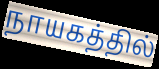
நாயகத்தில்